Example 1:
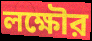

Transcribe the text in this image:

লক্ষৌর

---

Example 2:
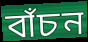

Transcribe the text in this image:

বাঁচন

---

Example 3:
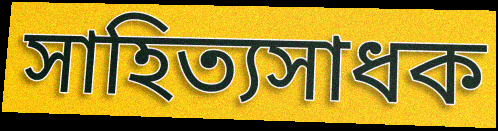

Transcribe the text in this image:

সাহিত্যসাধক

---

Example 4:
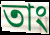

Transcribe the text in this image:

তাং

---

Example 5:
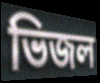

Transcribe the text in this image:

ভিজল